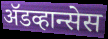
ॲडव्हान्सेस